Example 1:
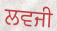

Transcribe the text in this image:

ਲਵਜੀ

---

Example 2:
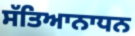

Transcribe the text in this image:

ਸੱਤਿਆਨਾਧਨ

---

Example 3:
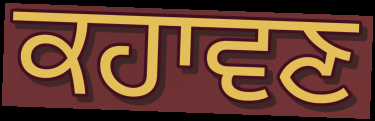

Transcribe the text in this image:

ਕਹਾਵਣ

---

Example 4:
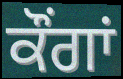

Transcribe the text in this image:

ਕੌਂਗਾਂ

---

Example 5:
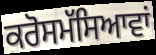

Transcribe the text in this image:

ਕਰੋਸਮੱਸਿਆਵਾਂ